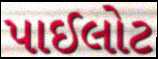
પાઈલોટ